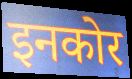
इनकोर